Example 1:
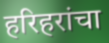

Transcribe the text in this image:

हरिहरांचा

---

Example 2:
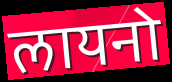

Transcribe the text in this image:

लायनो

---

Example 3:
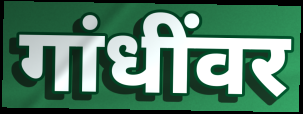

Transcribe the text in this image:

गांधींवर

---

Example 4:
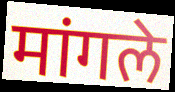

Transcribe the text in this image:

मांगले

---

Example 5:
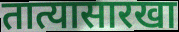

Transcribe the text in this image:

तात्यासारखा